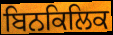
ਬਿਨਕਿਲਿਕ